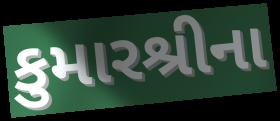
કુમારશ્રીના